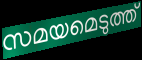
സമയമെടുത്ത്